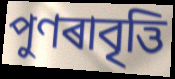
পুণৰাবৃত্তি